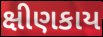
ક્ષીણકાય